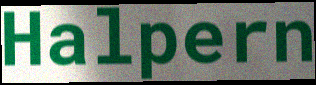
Halpern